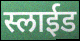
स्लाईड